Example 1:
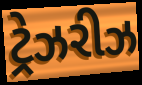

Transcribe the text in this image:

ટ્રેઝરીઝ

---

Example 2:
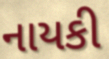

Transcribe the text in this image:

નાયકી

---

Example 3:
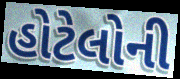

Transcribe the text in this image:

હોટેલોની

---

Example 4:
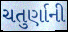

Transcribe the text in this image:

ચતુર્ણાની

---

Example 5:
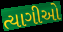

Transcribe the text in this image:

ત્યાગીઓ